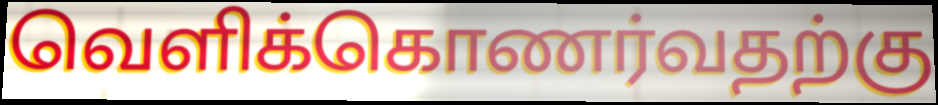
வெளிக்கொணர்வதற்கு